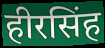
हीरसिंह